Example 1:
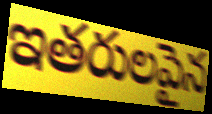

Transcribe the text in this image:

ఇతరులపైన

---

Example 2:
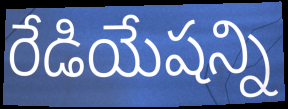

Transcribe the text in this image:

రేడియేషన్ని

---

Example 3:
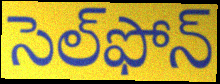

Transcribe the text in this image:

సెల్‌ఫోన్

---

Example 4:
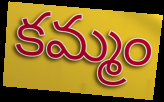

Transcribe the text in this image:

కమ్మం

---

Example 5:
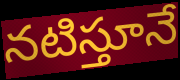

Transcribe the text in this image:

నటిస్తూనే